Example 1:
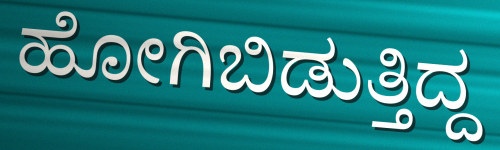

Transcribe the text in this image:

ಹೋಗಿಬಿಡುತ್ತಿದ್ದ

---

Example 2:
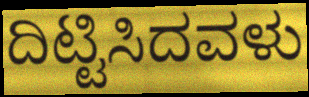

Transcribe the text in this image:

ದಿಟ್ಟಿಸಿದವಳು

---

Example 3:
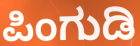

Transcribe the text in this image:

ಪಿಂಗುಡಿ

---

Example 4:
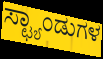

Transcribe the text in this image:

ಸ್ಟ್ಯಾಂಡುಗಳ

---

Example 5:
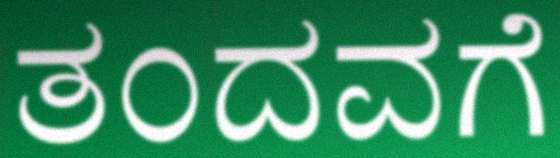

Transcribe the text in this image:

ತಂದವಗೆ